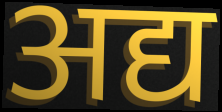
अद्य